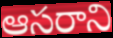
ఆసరాని